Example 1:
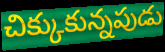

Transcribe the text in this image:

చిక్కుకున్నపుడు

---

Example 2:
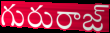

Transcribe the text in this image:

గురురాజ్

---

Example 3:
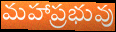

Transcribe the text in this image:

మహాప్రభువు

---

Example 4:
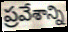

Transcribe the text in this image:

ప్రవేశాన్ని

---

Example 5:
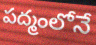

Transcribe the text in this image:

పద్మంలోనే